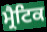
ਮ੍ਰੈਟਿਕ